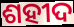
ଶହୀଦ